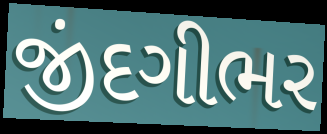
જીંદગીભર